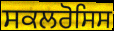
ਸਕਲਰੋਸਿਸ